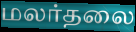
மலர்தலை